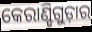
କେରାଣ୍ଡିଗୁଡ଼ାର